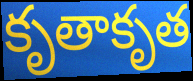
కృతాకృత